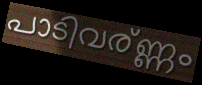
പാടിവര്ണ്ണം